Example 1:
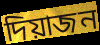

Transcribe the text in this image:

দিয়াজন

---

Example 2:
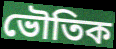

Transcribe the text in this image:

ভৌতিক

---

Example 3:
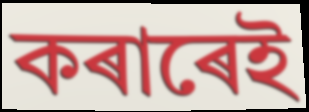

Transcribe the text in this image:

কৰাৰেই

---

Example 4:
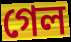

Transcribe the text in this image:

গেল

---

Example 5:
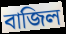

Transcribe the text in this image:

বাজিল